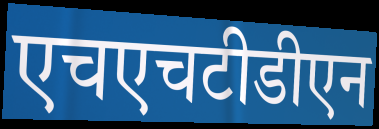
एचएचटीडीएन